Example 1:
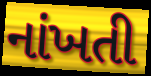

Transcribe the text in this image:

નાંખતી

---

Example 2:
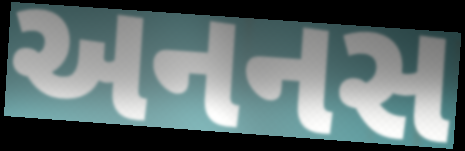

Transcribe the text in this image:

અનનસ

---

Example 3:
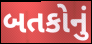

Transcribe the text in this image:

બતકોનું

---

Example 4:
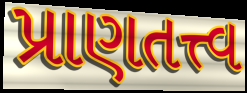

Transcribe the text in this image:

પ્રાણતત્ત્વ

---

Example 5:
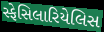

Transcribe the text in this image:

સ્ફેસિલારિયેલિસ